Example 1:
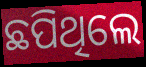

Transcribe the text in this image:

ଛପିଥିଲେ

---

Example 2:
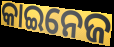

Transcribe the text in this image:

କାଇନେଜ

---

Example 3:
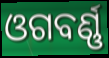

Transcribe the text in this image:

ଓଗବର୍ଣ୍ଣ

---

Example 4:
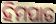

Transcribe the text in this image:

ହିମପାତ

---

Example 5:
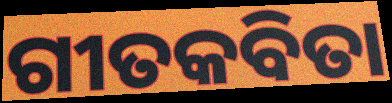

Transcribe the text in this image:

ଗୀତକବିତା